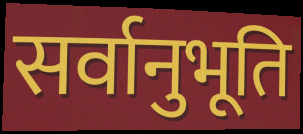
सर्वानुभूति